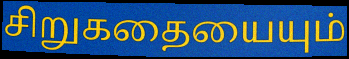
சிறுகதையையும்